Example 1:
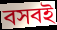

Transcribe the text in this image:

বসবই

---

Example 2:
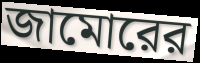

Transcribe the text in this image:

জামোরের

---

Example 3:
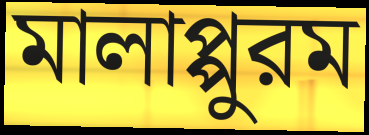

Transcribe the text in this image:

মালাপ্পুরম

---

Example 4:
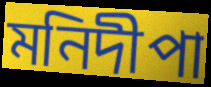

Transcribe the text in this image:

মনিদীপা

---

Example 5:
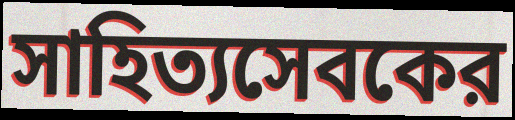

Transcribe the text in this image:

সাহিত্যসেবকের